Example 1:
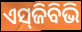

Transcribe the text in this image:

ଏସ୍‌ଜିବିଭି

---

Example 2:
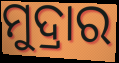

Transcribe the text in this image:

ମୁଦ୍ରାର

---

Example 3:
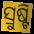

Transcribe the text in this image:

ସ୍ରୁଷ୍ଟି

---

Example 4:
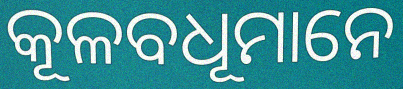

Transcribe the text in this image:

କୂଳବଧୂମାନେ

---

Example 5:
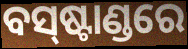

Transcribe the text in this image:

ବସ୍‍ଷ୍ଟାଣ୍ଡରେ